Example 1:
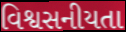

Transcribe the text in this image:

વિશ્વસનીયતા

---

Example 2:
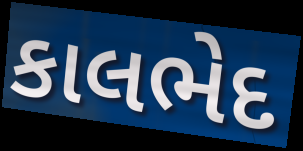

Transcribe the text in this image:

કાલભેદ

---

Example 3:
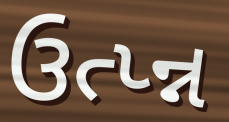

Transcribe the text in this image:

ઉત્પ્ન્ન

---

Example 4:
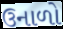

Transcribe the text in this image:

ઉનાળો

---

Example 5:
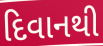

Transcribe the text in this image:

દિવાનથી